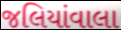
જલિયાંવાલા